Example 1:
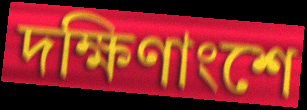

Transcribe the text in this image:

দক্ষিণাংশে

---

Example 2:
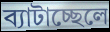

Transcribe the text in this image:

ব্যাটাচ্ছেলে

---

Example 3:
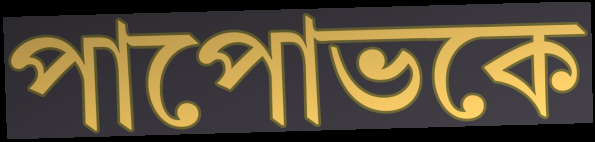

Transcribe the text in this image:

পাপোভকে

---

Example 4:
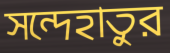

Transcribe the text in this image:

সন্দেহাতুর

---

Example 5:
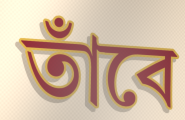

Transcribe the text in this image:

তাঁবে